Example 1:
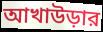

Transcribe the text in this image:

আখাউড়ার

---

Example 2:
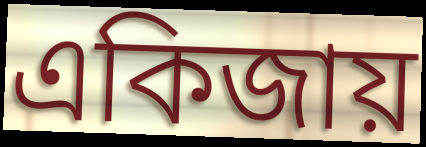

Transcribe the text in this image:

একিজায়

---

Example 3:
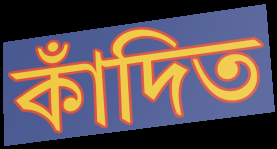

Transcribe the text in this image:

কাঁদিত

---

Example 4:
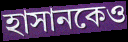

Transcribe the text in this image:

হাসানকেও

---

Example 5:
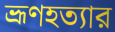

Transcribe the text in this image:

ভ্রূণহত্যার